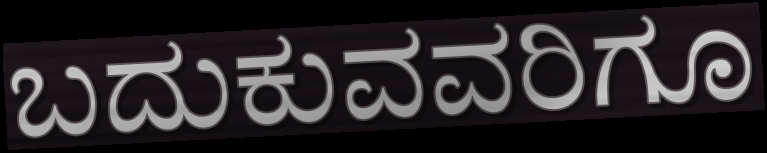
ಬದುಕುವವರಿಗೂ